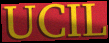
UCIL